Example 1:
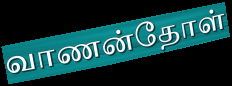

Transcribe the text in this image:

வாணன்தோள்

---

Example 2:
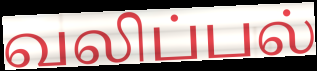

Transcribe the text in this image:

வலிப்பல்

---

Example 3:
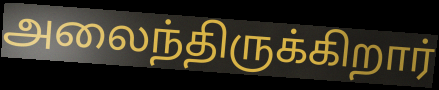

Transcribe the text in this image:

அலைந்திருக்கிறார்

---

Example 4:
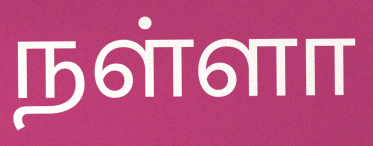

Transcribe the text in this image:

நள்ளா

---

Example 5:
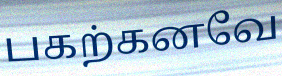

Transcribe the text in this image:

பகற்கனவே